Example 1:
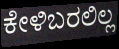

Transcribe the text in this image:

ಕೇಳಿಬರಲಿಲ್ಲ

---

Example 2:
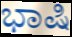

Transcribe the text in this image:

ಭಾಷಿ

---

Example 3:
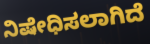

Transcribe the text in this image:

ನಿಷೇಧಿಸಲಾಗಿದೆ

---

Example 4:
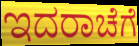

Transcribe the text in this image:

ಇದರಾಚೆಗೆ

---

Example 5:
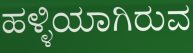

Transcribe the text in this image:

ಹಳ್ಳಿಯಾಗಿರುವ